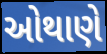
ઓથાણે